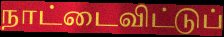
நாட்டைவிட்டுப்